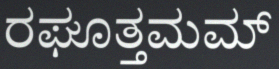
ರಘೂತ್ತಮಮ್